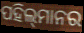
ପହିଲ୍‌ମାନର